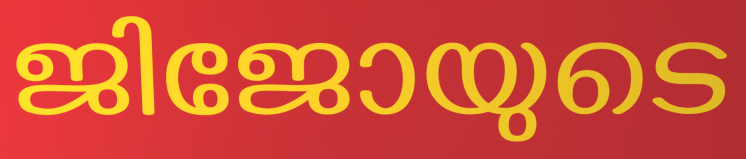
ജിജോയുടെ